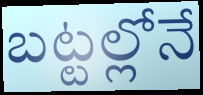
బట్టల్లోనే